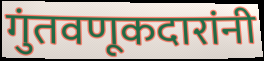
गुंतवणूकदारांनी